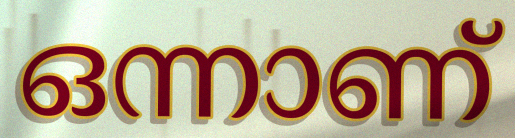
ഒന്നാണ്